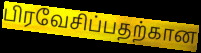
பிரவேசிப்பதற்கான